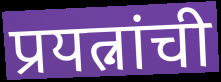
प्रयत्नांची